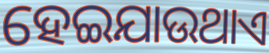
ହେଇଯାଉଥାଏ